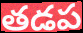
తడప